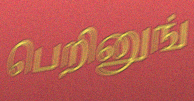
பெறினுங்